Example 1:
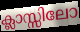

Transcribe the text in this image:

ക്ലാസ്സിലോ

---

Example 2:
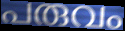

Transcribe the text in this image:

പരുവം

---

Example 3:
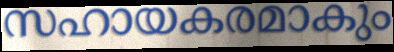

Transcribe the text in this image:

സഹായകരമാകും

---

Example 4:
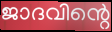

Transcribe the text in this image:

ജാദവിന്റെ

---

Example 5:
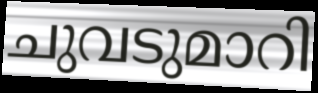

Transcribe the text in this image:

ചുവടുമാറി